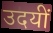
उदयीं